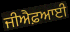
ਜੀਐਫ਼ਆਈ